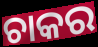
ଚାକର